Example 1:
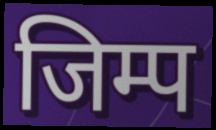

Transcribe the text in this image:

जिम्प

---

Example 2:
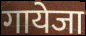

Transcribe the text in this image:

गायेजा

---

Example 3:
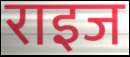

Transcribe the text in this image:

राइज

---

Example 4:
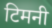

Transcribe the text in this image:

टिमनी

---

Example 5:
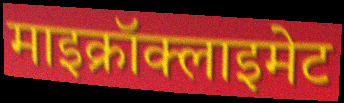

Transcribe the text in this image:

माइक्रॉक्लाइमेट